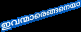
ഇവന്മാരെങ്ങനെയാ